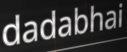
dadabhai